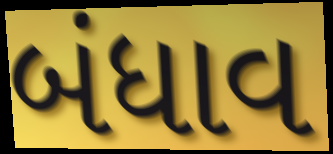
બંધાવ